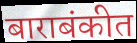
बाराबंकीत